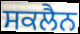
ਸਕਲੈਨ